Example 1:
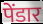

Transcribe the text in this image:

पेंडार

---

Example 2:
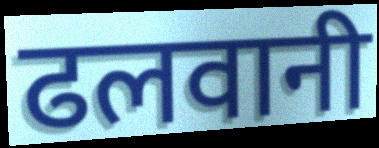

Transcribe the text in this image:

ढलवानी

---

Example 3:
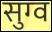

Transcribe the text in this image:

सुग्व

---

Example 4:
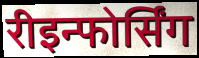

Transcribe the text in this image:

रीइन्फोर्सिंग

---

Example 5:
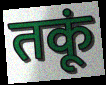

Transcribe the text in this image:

तकूं